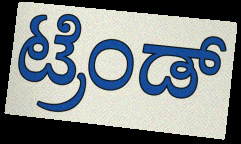
ಟ್ರೆಂಡ್